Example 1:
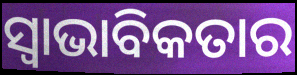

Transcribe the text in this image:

ସ୍ୱାଭାବିକତାର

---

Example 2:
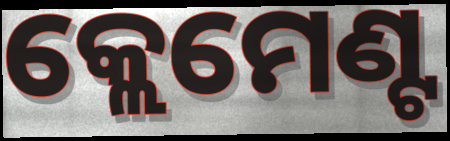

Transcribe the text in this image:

କ୍ଲେମେଣ୍ଟ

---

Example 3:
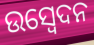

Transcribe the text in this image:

ଉସ୍ୱେଦନ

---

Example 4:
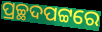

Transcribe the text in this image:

ପ୍ରଚ୍ଛଦପଟ୍ଟରେ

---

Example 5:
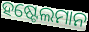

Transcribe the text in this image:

ହଷ୍ଟେଲମାନ